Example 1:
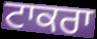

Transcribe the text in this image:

ਟਾਕਰਾ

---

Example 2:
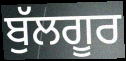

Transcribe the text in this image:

ਬੁੱਲਗੂਰ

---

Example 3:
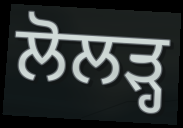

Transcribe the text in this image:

ਲੋਲੜ੍ਹ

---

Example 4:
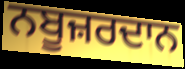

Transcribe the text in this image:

ਨਬੂਜ਼ਰਦਾਨ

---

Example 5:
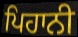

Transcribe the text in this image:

ਪਿਹਾਨੀ